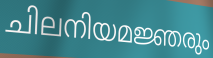
ചിലനിയമജ്ഞരും